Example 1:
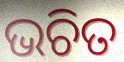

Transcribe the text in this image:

ଭଚିତ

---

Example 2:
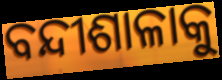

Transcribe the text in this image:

ବନ୍ଦୀଶାଳାକୁ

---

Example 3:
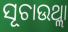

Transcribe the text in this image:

ସୂଚାଉଥ୍ଲା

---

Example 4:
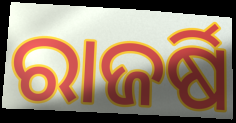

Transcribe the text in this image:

ରାଜର୍ଷି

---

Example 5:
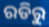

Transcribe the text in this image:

ରଡିରୁ